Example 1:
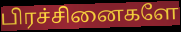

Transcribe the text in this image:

பிரச்சினைகளே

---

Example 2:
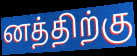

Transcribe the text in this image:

னத்திற்கு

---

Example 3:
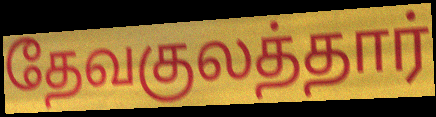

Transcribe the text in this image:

தேவகுலத்தார்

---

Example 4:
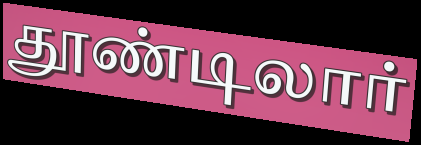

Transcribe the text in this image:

தூண்டிலார்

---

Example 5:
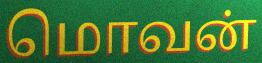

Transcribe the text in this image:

மொவன்